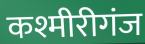
कश्मीरीगंज